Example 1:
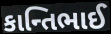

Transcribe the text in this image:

કાન્તિભાઈ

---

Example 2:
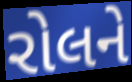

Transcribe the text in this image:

રોલને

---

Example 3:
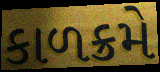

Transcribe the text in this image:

કાળક્રમે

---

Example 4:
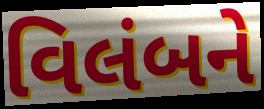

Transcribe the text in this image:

વિલંબને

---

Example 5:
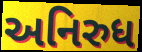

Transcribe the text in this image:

અનિરુધ